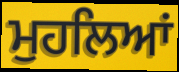
ਮੁਹਲਿਆਂ